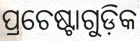
ପ୍ରଚେଷ୍ଟାଗୁଡ଼ିକ